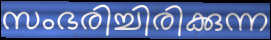
സംഭരിച്ചിരിക്കുന്ന